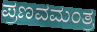
ಪ್ರಣವಮಂತ್ರ